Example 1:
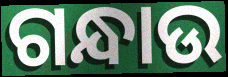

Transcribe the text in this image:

ଗନ୍ଧାଉ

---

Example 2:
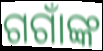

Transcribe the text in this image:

ଗଗାଁଙ୍କ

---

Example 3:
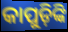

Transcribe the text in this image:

କାପୁଡ଼ିଙ୍କି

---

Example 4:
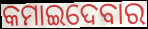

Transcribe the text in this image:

କମାଇଦେବାର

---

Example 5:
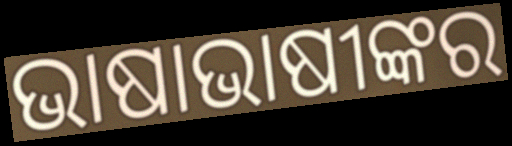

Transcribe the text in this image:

ଭାଷାଭାଷୀଙ୍କର